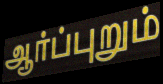
ஆர்ப்புறும்